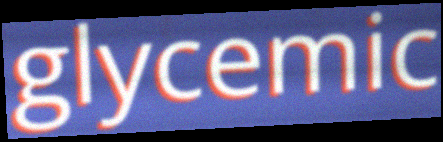
glycemic